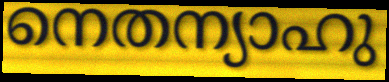
നെതന്യാഹു